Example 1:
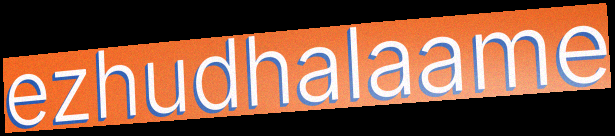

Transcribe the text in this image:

ezhudhalaame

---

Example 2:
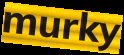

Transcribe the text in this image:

murky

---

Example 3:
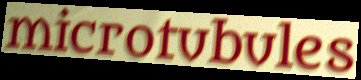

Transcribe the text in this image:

microtubules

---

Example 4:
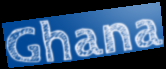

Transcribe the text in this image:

Ghana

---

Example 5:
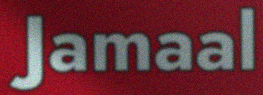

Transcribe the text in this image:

Jamaal